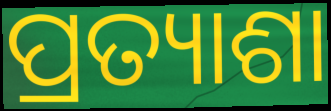
ପ୍ରତ୍ୟାଶା